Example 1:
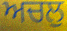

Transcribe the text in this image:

ਅਚਲੁ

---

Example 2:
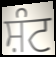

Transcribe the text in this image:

ਸ਼ੰਟ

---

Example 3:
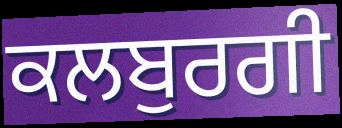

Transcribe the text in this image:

ਕਲਬੁਰਗੀ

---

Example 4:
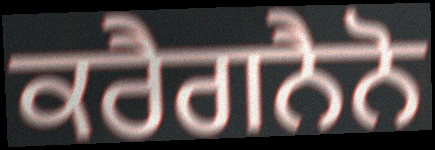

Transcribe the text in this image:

ਕਰੈਗਨੈਨੋ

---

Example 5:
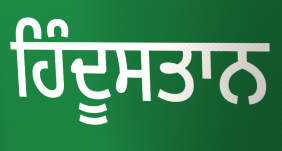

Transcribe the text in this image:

ਹਿੰਦੂਸਤਾਨ